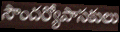
సౌందర్యోపాసకులు